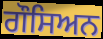
ਗੌਸਿਅਨ